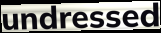
undressed